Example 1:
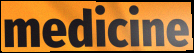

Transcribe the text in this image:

medicine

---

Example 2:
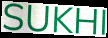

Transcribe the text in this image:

SUKHI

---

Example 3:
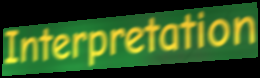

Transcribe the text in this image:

Interpretation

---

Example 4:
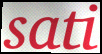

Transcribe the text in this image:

sati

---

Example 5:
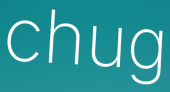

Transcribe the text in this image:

chug